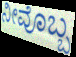
ನೀವೊಬ್ಬ